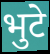
भुटे